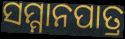
ସମ୍ମାନପାତ୍ର